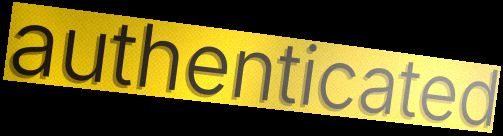
authenticated